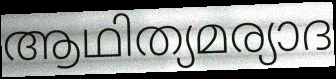
ആഥിത്യമര്യാദ